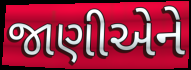
જાણીએને